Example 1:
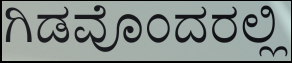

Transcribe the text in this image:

ಗಿಡವೊಂದರಲ್ಲಿ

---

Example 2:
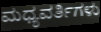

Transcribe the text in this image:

ಮಧ್ಯವರ್ತಿಗಳು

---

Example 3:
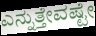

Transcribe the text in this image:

ಎನ್ನುತ್ತೇವಷ್ಟೇ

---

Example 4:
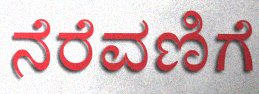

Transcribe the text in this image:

ನೆರೆವಣಿಗೆ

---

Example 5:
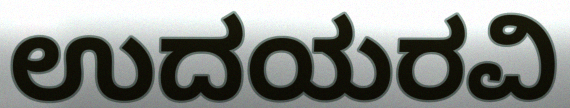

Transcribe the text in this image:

ಉದಯರವಿ